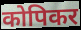
कोपिकर